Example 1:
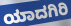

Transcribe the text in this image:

ಯಾದಗಿರಿ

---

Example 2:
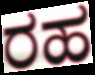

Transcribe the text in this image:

ರಹ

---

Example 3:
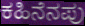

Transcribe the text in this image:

ಕಹಿನೆನಪು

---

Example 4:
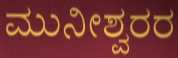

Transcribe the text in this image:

ಮುನೀಶ್ವರರ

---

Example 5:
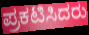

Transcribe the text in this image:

ಪ್ರಕಟಿಸಿದರು